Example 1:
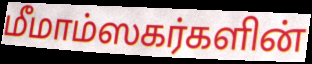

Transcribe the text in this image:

மீமாம்ஸகர்களின்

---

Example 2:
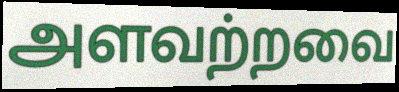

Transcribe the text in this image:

அளவற்றவை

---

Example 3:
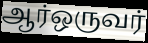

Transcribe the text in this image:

ஆர்ஒருவர்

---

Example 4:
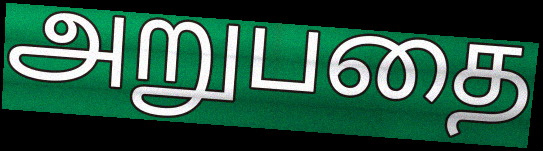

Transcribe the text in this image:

அறுபதை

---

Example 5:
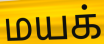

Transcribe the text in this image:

மயக்